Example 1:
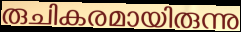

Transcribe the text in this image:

രുചികരമായിരുന്നു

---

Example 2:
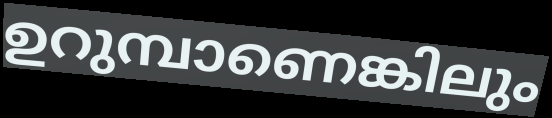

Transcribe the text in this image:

ഉറുമ്പാണെങ്കിലും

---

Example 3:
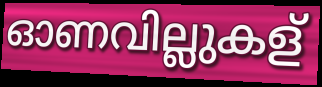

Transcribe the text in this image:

ഓണവില്ലുകള്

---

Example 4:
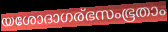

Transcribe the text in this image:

യശോദാഗര്ഭസംഭൂതാം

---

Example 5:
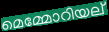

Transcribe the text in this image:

മെമ്മോറിയല്